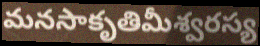
మనసాకృతిమీశ్వరస్య